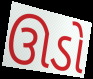
ઊડો